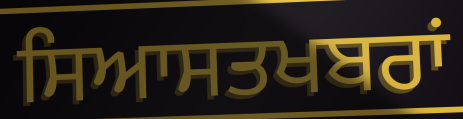
ਸਿਆਸਤਖਬਰਾਂ